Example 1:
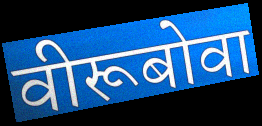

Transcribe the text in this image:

वीरूबोवा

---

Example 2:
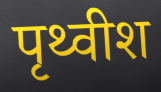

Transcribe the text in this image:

पृथ्वीश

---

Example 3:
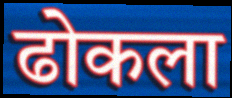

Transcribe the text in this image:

ढोकला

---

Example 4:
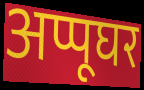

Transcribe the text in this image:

अप्पूघर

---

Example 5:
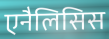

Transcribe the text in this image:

एनैलिसिस